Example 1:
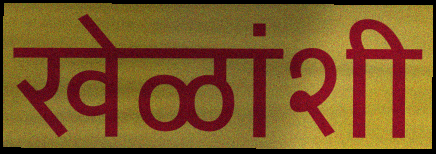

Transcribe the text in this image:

खेळांशी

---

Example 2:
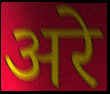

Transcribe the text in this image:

अरे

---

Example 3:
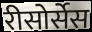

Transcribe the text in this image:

रीसोर्सेस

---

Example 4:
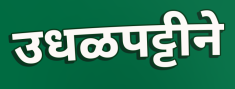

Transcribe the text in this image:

उधळपट्टीने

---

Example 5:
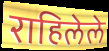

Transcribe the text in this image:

राहिलेले